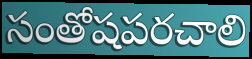
సంతోషపరచాలి